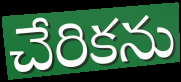
చేరికను